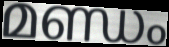
മണ്ഡം